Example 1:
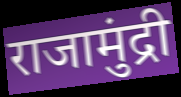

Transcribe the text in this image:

राजामुंद्री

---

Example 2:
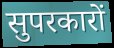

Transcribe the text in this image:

सुपरकारों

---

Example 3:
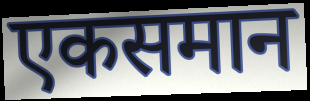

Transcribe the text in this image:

एकसमान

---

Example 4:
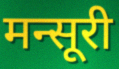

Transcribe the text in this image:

मन्सूरी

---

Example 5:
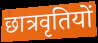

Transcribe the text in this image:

छात्रवृतियों